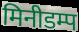
मिनीडम्प